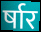
र्षार